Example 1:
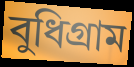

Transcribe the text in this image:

বুধিগ্রাম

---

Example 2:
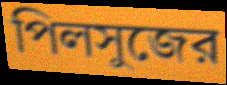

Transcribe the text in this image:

পিলসুজের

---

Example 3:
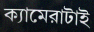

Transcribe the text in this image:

ক্যামেরাটাই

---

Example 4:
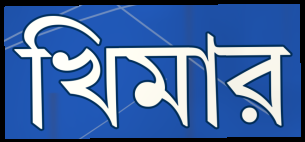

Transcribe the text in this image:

খিমার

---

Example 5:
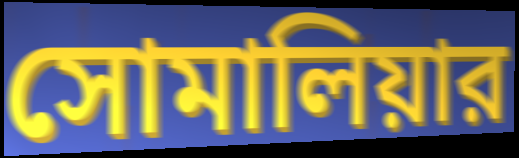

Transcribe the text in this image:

সোমালিয়ার